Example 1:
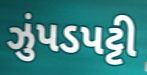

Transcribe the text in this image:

ઝુંપડપટ્ટી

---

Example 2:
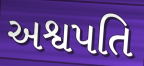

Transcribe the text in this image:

અશ્વપતિ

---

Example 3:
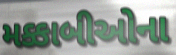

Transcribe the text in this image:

મક્કાબીઓના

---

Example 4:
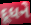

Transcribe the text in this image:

દૂધને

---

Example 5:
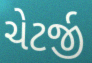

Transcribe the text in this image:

ચેટર્જી